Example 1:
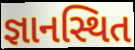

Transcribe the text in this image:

જ્ઞાનસ્થિત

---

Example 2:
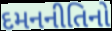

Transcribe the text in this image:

દમનનીતિનો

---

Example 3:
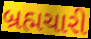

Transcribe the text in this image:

બ્રહ્મચારી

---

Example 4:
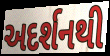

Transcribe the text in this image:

અદર્શનથી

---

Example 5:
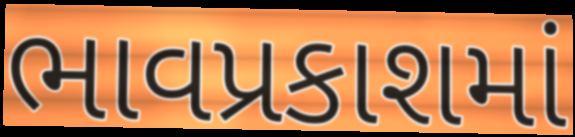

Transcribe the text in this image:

ભાવપ્રકાશમાં